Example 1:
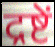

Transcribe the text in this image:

द्रष्टें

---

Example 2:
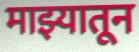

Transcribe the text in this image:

माझ्यातून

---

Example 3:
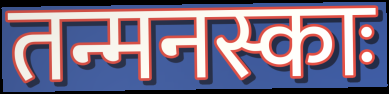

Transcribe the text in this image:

तन्मनस्काः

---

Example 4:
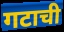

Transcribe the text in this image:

गटाची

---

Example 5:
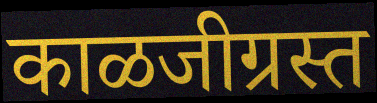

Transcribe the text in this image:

काळजीग्रस्त